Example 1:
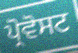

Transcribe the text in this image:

ਪ੍ਰੋਵੋਸਟ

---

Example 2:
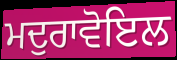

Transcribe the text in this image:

ਮਦੁਰਾਵੋਇਲ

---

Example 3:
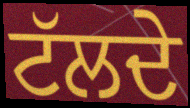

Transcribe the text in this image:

ਟੱਲਦੇ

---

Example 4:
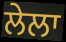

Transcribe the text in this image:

ਲੇਲਾ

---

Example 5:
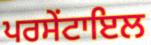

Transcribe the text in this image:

ਪਰਸੇਂਟਾਇਲ